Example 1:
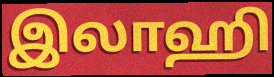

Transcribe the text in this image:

இலாஹி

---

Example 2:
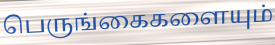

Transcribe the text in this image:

பெருங்கைகளையும்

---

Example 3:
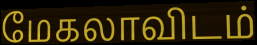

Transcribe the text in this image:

மேகலாவிடம்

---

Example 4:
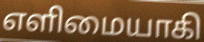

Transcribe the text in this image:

எளிமையாகி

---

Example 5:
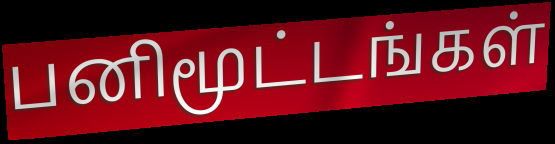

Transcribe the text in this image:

பனிமூட்டங்கள்